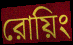
রোয়িং